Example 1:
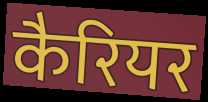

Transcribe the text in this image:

कैरियर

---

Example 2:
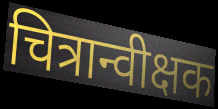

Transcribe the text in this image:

चित्रान्वीक्षक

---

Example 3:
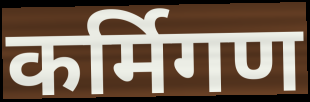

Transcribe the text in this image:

कर्मिगण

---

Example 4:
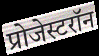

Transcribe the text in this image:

प्रोजेस्टरॉन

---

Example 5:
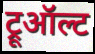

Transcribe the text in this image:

ट्रूऑल्ट